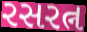
રસરત્ન